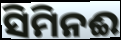
ସିମିନଈ